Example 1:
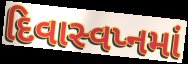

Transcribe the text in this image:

દિવાસ્વપ્નમાં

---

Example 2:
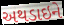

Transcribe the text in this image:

અથડાઇને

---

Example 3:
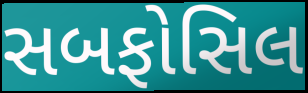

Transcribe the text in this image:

સબફોસિલ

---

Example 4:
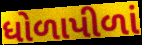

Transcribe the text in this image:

ધોળાપીળાં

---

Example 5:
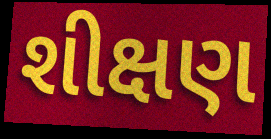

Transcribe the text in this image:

શીક્ષણ